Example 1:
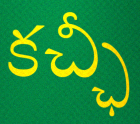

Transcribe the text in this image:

కచ్ఛీ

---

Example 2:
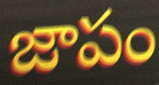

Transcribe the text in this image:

జాపం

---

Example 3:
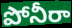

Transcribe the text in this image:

పోనీరా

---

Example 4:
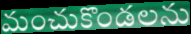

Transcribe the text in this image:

మంచుకొండలను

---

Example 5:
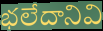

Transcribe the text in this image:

భలేదానివి